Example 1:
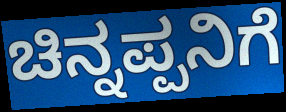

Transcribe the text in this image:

ಚಿನ್ನಪ್ಪನಿಗೆ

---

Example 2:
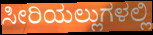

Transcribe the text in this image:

ಸೀರಿಯಲ್ಲುಗಳಲ್ಲಿ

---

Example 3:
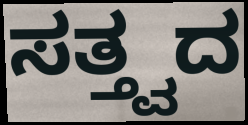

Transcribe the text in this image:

ಸತ್ತ್ವದ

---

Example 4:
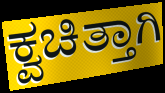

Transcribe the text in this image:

ಕ್ವಚಿತ್ತಾಗಿ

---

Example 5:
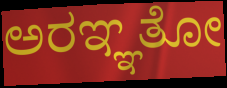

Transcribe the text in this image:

ಅರಞ್ಞತೋ